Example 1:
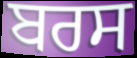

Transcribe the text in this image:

ਬਰਸ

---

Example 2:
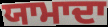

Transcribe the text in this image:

ਯਾਮਾਦਾ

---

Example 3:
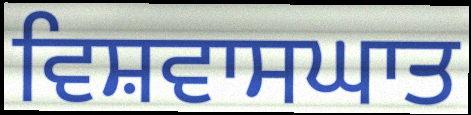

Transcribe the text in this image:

ਵਿਸ਼ਵਾਸਘਾਤ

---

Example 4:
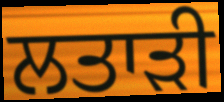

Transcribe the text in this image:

ਲਤਾੜੀ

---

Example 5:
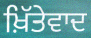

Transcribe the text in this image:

ਖ਼ਿੱਤੇਵਾਦ